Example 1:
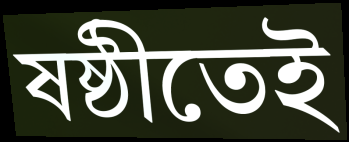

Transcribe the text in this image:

ষষ্ঠীতেই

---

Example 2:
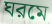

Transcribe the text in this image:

ঘরমে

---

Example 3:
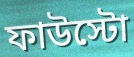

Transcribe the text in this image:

ফাউস্টো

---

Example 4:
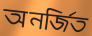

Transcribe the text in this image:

অনর্জিত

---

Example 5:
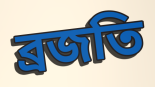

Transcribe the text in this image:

ব্রজতি